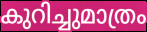
കുറിച്ചുമാത്രം